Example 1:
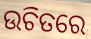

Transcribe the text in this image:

ଉଚିତରେ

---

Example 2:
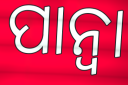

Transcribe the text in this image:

ପାନ୍ଵା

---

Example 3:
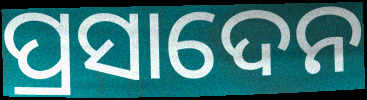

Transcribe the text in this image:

ପ୍ରସାଦେନ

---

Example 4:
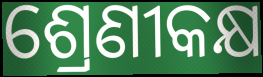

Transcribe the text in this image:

ଶ୍ରେଣୀକକ୍ଷ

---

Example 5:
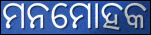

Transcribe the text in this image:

ମନମୋହକ